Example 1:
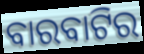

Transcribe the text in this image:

ବାରବାଟିର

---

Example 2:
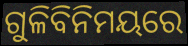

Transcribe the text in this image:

ଗୁଳିବିନିମୟରେ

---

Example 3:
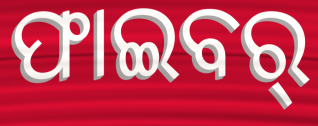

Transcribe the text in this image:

ଫାଇବର୍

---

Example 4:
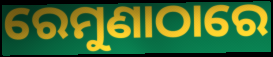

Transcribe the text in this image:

ରେମୁଣାଠାରେ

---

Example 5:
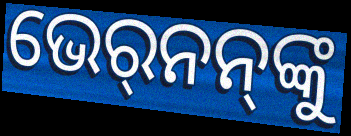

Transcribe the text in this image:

ଭେର୍‍ନନ୍‌ଙ୍କୁ